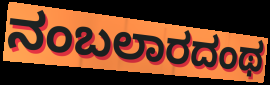
ನಂಬಲಾರದಂಥ